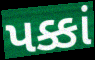
પક્કાં